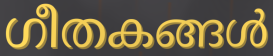
ഗീതകങ്ങൾ